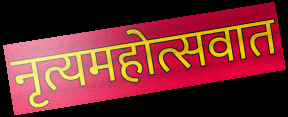
नृत्यमहोत्सवात